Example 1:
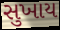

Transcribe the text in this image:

સુખાય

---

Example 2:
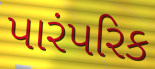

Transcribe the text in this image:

પારંપરિક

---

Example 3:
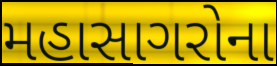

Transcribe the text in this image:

મહાસાગરોના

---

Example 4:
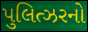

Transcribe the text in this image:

પુલિત્ઝરનો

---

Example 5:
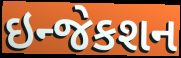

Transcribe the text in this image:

ઇન્જેકશન